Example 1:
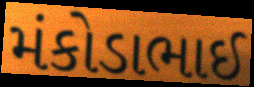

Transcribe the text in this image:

મંકોડાભાઈ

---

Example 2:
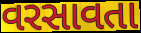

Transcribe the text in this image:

વરસાવતા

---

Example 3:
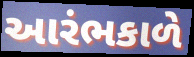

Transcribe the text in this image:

આરંભકાળે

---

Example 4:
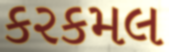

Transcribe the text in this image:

કરકમલ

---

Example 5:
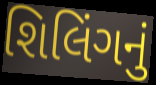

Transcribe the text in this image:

શિલિંગનું